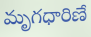
మృగధారిణే